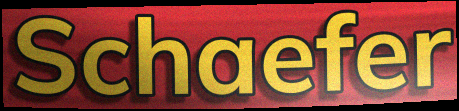
Schaefer